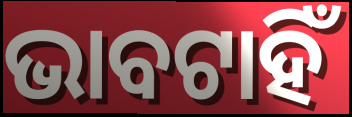
ଭାବଟାହିଁ